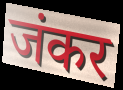
जंकर